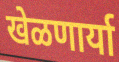
खेळणार्या